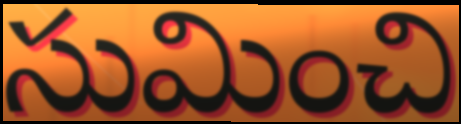
సుమించి